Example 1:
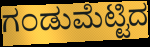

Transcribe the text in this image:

ಗಂಡುಮೆಟ್ಟಿದ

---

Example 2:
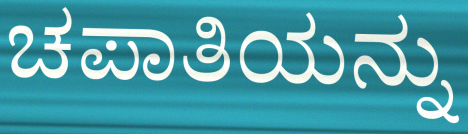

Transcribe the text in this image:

ಚಪಾತಿಯನ್ನು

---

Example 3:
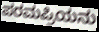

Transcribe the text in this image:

ಪರಮಪ್ರಿಯನು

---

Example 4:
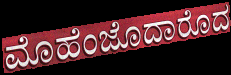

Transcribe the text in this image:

ಮೊಹೆಂಜೊದಾರೊದ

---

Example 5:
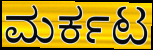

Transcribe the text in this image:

ಮರ್ಕಟ